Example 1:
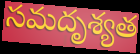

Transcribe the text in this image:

సమదృశ్యత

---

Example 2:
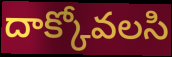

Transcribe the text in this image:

దాక్కోవలసి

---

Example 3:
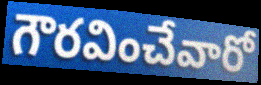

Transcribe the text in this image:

గౌరవించేవారో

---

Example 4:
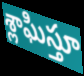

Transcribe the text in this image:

శ్లాఘిస్తూ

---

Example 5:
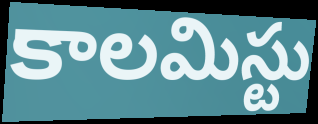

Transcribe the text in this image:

కాలమిస్టు